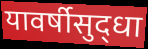
यावर्षीसुद्धा